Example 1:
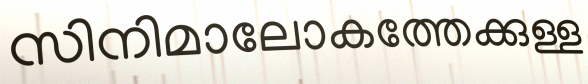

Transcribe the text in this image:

സിനിമാലോകത്തേക്കുള്ള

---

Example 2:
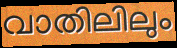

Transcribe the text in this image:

വാതിലിലും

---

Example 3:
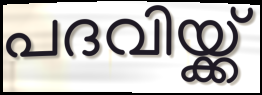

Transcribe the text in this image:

പദവിയ്ക്ക്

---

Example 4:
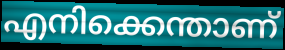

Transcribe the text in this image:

എനിക്കെന്താണ്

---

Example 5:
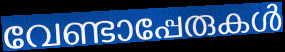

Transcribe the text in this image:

വേണ്ടാപ്പേരുകൾ